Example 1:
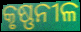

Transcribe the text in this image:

କୃଷ୍ଣନୀଳ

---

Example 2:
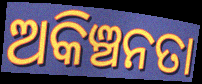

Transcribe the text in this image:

ଅକିଞ୍ଚନତା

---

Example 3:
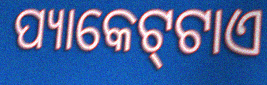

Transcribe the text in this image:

ପ୍ୟାକେଟ୍‌ଟାଏ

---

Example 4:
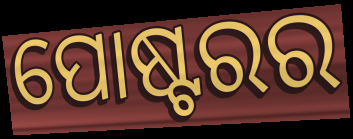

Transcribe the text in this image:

ପୋଷ୍ଟରର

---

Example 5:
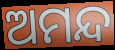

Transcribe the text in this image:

ଅମନ୍ଦ